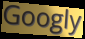
Googly